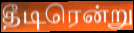
தீடிரென்று